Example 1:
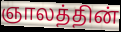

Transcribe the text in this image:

ஞாலத்தின்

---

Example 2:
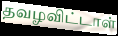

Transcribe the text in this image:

தவழவிட்டாள்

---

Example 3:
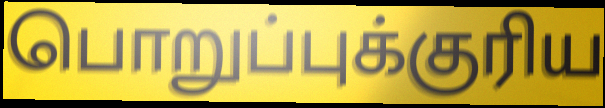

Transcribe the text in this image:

பொறுப்புக்குரிய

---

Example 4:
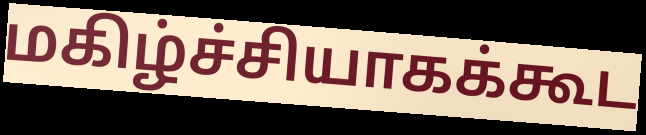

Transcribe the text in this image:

மகிழ்ச்சியாகக்கூட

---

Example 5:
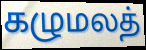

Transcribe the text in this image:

கழுமலத்